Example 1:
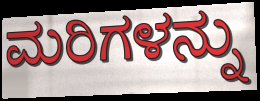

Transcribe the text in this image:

ಮರಿಗಳನ್ನು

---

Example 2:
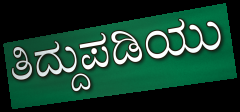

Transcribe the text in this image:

ತಿದ್ದುಪಡಿಯು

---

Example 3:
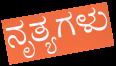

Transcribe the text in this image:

ನೃತ್ಯಗಳು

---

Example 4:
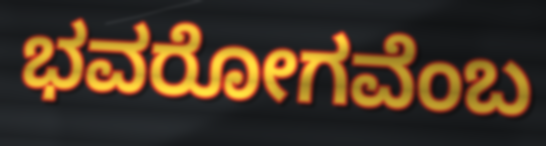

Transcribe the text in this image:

ಭವರೋಗವೆಂಬ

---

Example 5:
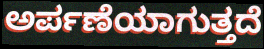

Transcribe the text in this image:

ಅರ್ಪಣೆಯಾಗುತ್ತದೆ